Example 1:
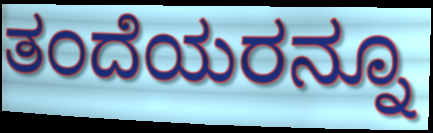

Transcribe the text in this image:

ತಂದೆಯರನ್ನೂ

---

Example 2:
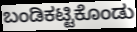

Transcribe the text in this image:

ಬಂಡಿಕಟ್ಟಿಕೊಂಡು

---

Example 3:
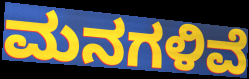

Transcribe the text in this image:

ಮನಗಳಿವೆ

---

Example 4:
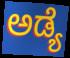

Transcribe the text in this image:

ಅಡ್ಯೆ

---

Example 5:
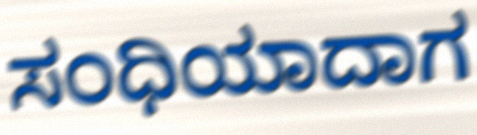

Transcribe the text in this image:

ಸಂಧಿಯಾದಾಗ